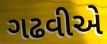
ગઢવીએ